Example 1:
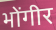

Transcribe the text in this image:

भोंगीर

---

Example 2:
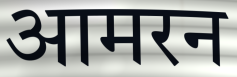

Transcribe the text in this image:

आमरन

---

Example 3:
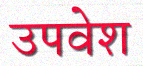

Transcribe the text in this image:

उपवेश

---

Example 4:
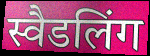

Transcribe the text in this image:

स्वैडलिंग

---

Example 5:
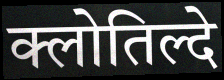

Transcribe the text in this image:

क्लोतिल्दे